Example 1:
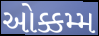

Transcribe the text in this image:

ઓક્કમ્મ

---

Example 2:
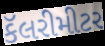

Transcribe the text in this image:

કૅલરીમીટર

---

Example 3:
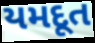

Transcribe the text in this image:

યમદૂત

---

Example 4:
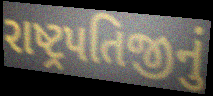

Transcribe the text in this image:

રાષ્ટ્રપતિજીનું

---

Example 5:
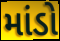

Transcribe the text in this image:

માંડો